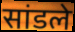
सांडले